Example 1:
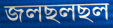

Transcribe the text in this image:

জলছলছল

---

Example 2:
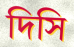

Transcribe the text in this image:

দিসি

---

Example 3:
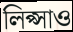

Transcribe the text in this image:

লিপ্সাও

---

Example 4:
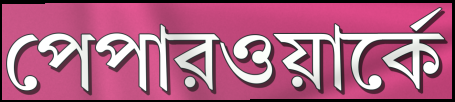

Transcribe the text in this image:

পেপারওয়ার্কে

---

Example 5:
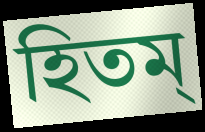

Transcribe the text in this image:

হিতম্